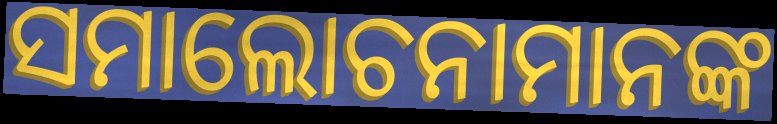
ସମାଲୋଚନାମାନଙ୍କ